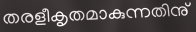
തരളീകൃതമാകുന്നതിനു്